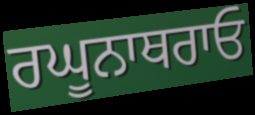
ਰਘੂਨਾਥਰਾਓ